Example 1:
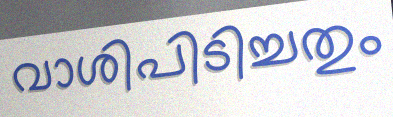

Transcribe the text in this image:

വാശിപിടിച്ചതും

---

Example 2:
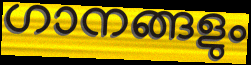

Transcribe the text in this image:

ഗാനങ്ങളും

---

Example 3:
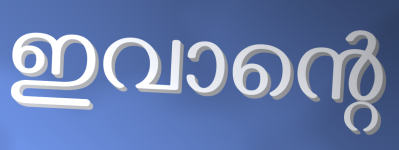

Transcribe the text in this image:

ഇവാന്റെ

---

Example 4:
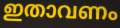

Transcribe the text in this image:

ഇതാവണം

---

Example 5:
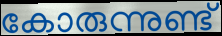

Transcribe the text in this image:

കോരുന്നുണ്ട്